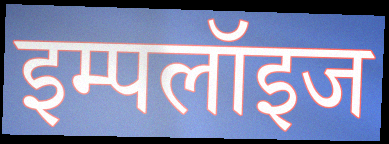
इम्पलॉइज